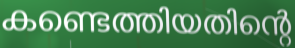
കണ്ടെത്തിയതിന്റെ